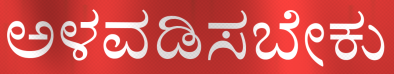
ಅಳವಡಿಸಬೇಕು